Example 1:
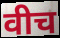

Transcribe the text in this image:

वीच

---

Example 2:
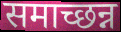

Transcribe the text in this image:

समाच्छन्न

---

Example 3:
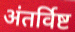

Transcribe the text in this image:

अंतर्विष्ट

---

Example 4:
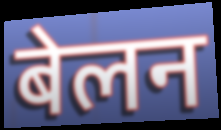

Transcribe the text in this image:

बेलन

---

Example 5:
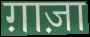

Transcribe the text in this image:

ग़ाज़ा